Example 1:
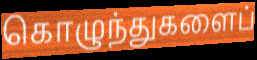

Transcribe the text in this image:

கொழுந்துகளைப்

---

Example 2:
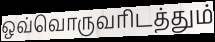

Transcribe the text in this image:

ஒவ்வொருவரிடத்தும்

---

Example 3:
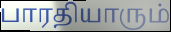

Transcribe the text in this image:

பாரதியாரும்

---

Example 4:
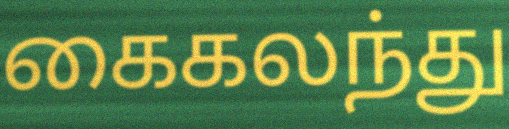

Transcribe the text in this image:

கைகலந்து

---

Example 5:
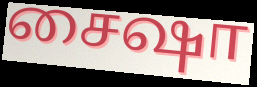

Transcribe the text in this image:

சைஷா